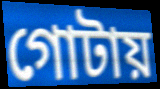
গোটায়